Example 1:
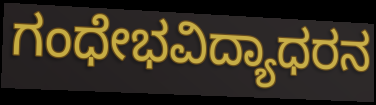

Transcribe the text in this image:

ಗಂಧೇಭವಿದ್ಯಾಧರನ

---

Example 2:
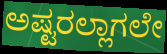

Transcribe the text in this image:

ಅಷ್ಟರಲ್ಲಾಗಲೇ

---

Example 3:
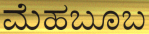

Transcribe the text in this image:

ಮೆಹಬೂಬ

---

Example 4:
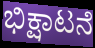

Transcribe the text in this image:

ಭಿಕ್ಷಾಟನೆ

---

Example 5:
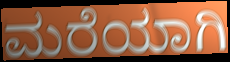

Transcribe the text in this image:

ಮರೆಯಾಗಿ